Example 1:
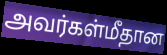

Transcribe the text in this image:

அவர்கள்மீதான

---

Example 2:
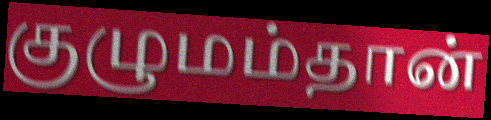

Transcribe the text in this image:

குழுமம்தான்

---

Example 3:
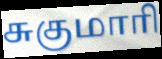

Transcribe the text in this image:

சுகுமாரி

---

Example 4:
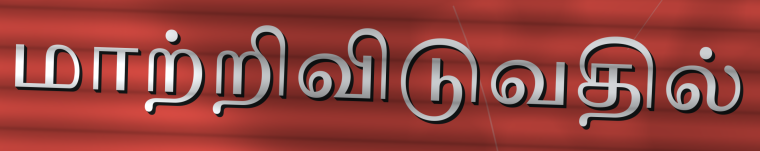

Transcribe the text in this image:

மாற்றிவிடுவதில்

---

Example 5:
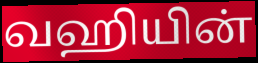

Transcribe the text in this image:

வஹியின்